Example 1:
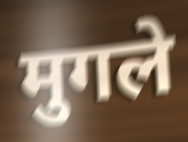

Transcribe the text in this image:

मुगले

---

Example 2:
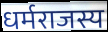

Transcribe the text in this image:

धर्मराजस्य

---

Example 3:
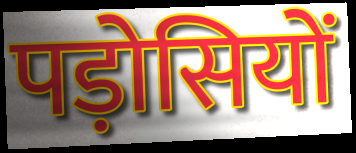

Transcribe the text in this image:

पड़ोसियों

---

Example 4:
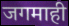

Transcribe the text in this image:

जगमाही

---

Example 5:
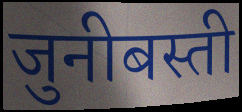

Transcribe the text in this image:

जुनीबस्ती